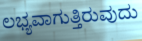
ಲಭ್ಯವಾಗುತ್ತಿರುವುದು